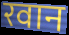
रवान